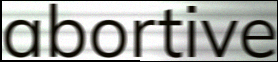
abortive